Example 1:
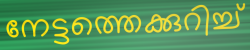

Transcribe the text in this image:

നേട്ടത്തെക്കുറിച്ച്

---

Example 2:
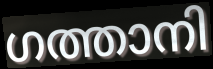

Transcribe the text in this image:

ഗത്താനി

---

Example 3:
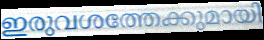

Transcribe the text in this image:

ഇരുവശത്തേക്കുമായി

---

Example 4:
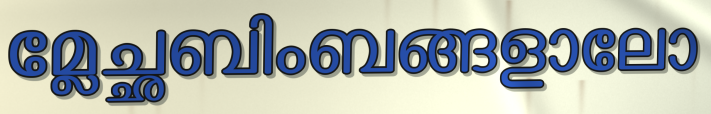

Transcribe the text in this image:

മ്ലേച്ഛബിംബങ്ങളാലോ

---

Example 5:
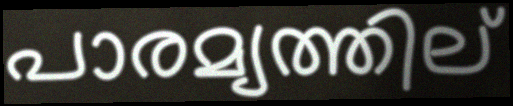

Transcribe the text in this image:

പാരമ്യത്തില്